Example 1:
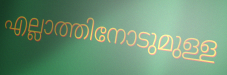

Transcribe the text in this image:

എല്ലാത്തിനോടുമുള്ള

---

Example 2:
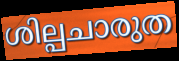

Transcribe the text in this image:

ശില്പചാരുത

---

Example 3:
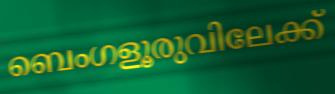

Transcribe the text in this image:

ബെംഗളൂരുവിലേക്ക്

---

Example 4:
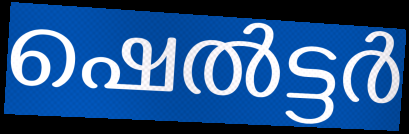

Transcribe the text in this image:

ഷെൽട്ടർ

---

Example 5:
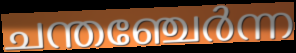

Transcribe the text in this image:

ചന്തഞ്ചേർന്ന